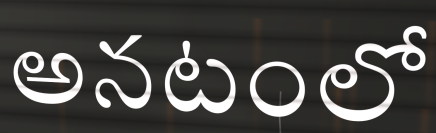
అనటంలో